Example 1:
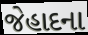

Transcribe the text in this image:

જેહાદના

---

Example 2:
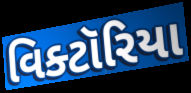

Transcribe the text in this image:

વિક્ટૉરિયા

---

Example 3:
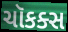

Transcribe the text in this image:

ચૉકક્સ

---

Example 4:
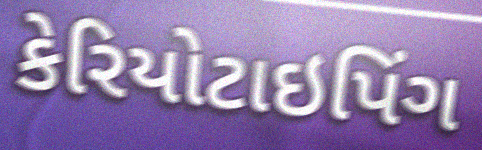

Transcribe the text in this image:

કેરિયોટાઇપિંગ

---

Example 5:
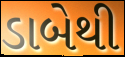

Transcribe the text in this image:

ડાબેથી